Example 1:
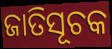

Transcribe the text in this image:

ଜାତିସୂଚକ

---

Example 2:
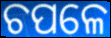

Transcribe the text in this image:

ଚପଳେ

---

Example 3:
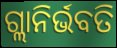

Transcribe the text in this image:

ଗ୍ଲାନିର୍ଭବତି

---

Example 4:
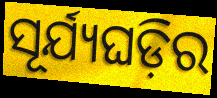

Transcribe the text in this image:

ସୂର୍ଯ୍ୟଘଡ଼ିର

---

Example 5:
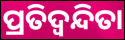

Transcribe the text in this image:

ପ୍ରତିଦ୍ଵନ୍ଦିତା